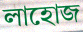
লাহোজ